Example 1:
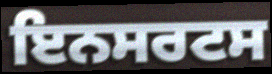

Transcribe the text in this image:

ਇਨਸਰਟਸ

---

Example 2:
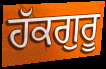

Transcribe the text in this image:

ਹੱਕਗੁਰੂ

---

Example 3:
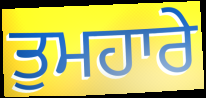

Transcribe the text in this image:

ਤੁਮਹਾਰੇ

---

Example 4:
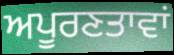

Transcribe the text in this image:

ਅਪੂਰਣਤਾਵਾਂ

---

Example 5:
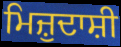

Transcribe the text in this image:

ਮਿਜ਼ੁਦਾਸ਼ੀ